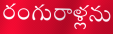
రంగురాళ్లను